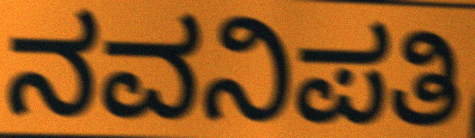
ನವನಿಪತಿ